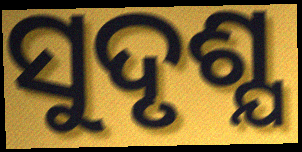
ସୁଦୃଶ୍ଯ